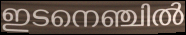
ഇടനെഞ്ചിൽ